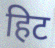
हिट